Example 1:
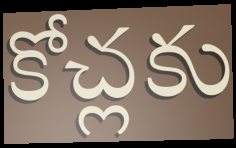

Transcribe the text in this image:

కోచ్లకు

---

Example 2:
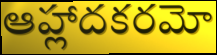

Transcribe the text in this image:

ఆహ్లాదకరమో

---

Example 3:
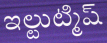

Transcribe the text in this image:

ఇల్టుట్మిష్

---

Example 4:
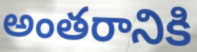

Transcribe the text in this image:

అంతరానికి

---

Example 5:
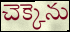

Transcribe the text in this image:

చెక్కెను